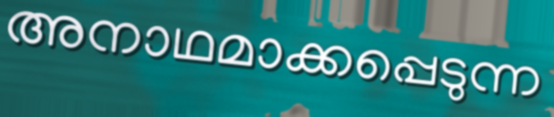
അനാഥമാക്കപ്പെടുന്ന